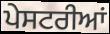
ਪੇਸਟਰੀਆਂ